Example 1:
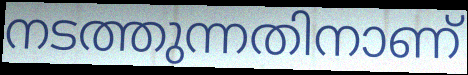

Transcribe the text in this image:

നടത്തുന്നതിനാണ്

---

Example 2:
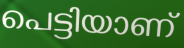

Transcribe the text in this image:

പെട്ടിയാണ്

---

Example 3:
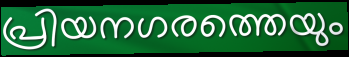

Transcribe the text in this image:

പ്രിയനഗരത്തെയും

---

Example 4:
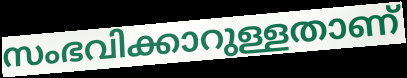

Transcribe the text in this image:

സംഭവിക്കാറുള്ളതാണ്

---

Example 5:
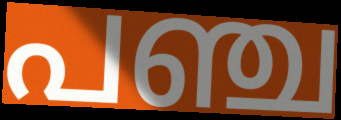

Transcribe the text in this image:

പഞ്ച